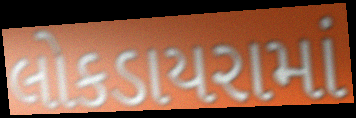
લોકડાયરામાં